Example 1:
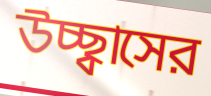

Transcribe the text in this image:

উচ্ছ্বাসের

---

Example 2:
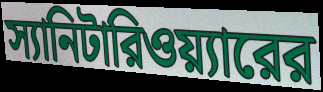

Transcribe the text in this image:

স্যানিটারিওয়্যারের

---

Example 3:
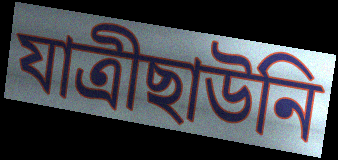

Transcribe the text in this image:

যাত্রীছাউনি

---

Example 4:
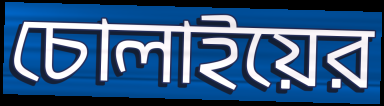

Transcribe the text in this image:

চোলাইয়ের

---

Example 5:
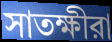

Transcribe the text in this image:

সাতক্ষীরা